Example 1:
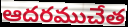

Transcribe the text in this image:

ఆదరముచేత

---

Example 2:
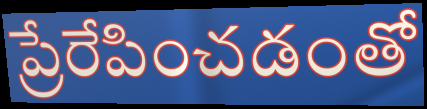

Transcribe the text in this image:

ప్రేరేపించడంతో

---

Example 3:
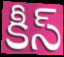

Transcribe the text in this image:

కీస్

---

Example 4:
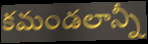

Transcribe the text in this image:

కమండలాన్నీ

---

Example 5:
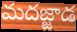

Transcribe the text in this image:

మదజ్జాడ